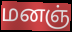
மனஞ்